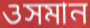
ওসমান